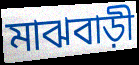
মাঝবাড়ী